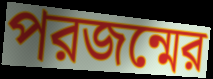
পরজন্মের